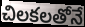
చిలకలతోనే